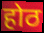
होठ